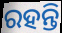
ରହନ୍ତି